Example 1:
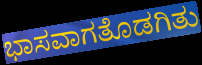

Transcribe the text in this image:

ಭಾಸವಾಗತೊಡಗಿತು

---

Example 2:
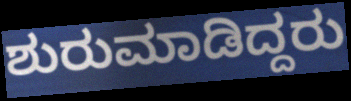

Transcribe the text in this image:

ಶುರುಮಾಡಿದ್ದರು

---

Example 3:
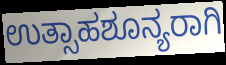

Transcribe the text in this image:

ಉತ್ಸಾಹಶೂನ್ಯರಾಗಿ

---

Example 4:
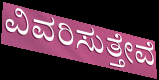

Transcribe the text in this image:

ವಿವರಿಸುತ್ತೇವೆ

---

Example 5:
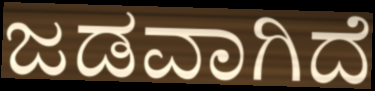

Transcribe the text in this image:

ಜಡವಾಗಿದೆ